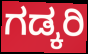
ಗಡ್ಕರಿ